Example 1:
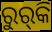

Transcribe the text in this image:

ରୁର୍‍କି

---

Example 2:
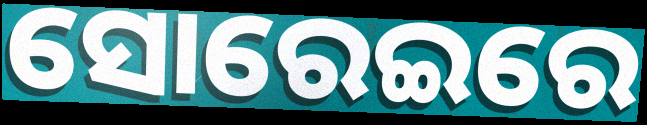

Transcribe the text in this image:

ସୋରେଇରେ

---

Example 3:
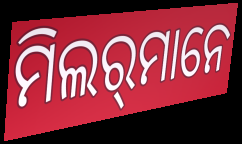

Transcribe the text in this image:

ମିଲର୍‌ମାନେ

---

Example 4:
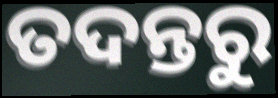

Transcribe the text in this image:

ତଦନ୍ତରୁ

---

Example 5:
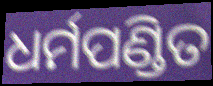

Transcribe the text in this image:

ଧର୍ମପଣ୍ଡିତ